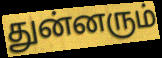
துன்னரும்